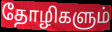
தோழிகளும்